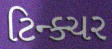
ટિન્ક્ચર